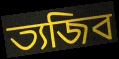
ত্যজিব